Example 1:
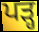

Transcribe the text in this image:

ਪੜ੍ਹ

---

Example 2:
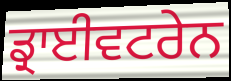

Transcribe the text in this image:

ਡ੍ਰਾਈਵਟਰੇਨ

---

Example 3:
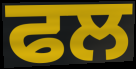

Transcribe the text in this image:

ਫਲ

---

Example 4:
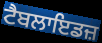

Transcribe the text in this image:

ਟੈਬਲਾਇਡਜ਼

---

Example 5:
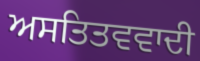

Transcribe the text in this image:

ਅਸਤਿਤਵਵਾਦੀ